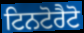
ਟਿਨਟੋਰੈਟੋ